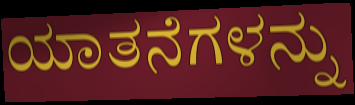
ಯಾತನೆಗಳನ್ನು